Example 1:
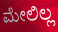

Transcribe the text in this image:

ಮೇಲಿಲ್ಲ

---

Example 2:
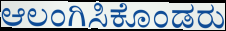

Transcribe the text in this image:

ಆಲಂಗಿಸಿಕೊಂಡರು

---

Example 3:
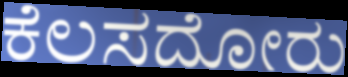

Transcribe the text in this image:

ಕೆಲಸದೋರು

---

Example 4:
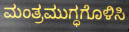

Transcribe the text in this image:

ಮಂತ್ರಮುಗ್ಧಗೊಳಿಸಿ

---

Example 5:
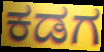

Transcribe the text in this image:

ಕಡಗ